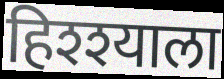
हिश्श्याला